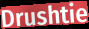
Drushtie